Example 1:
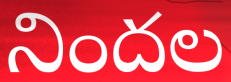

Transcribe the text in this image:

నిందల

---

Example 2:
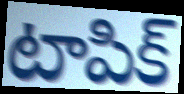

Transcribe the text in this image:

టాపిక్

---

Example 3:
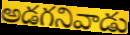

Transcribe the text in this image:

అడగనివాడు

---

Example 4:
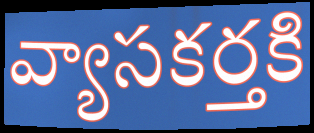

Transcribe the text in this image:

వ్యాసకర్తకి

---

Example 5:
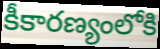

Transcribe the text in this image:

కీకారణ్యంలోకి